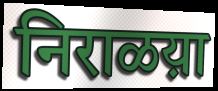
निराळय़ा